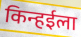
किन्हईला